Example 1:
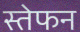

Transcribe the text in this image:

स्तेफन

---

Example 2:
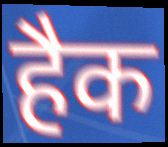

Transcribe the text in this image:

हैक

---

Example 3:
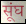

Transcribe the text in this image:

सूंघ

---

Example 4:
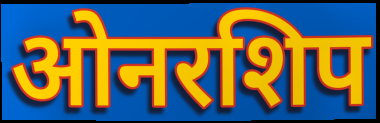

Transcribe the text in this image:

ओनरशिप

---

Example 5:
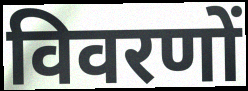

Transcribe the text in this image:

विवरणों